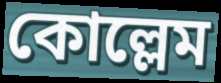
কোল্লেম